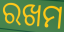
ରଖମ